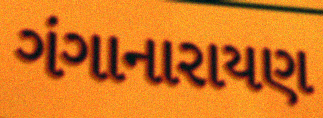
ગંગાનારાયણ